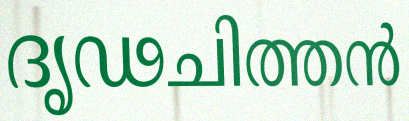
ദൃഢചിത്തൻ